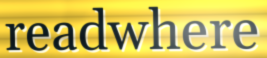
readwhere